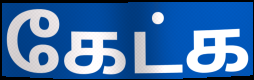
கேட்க